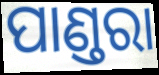
ପାଣ୍ଡରା